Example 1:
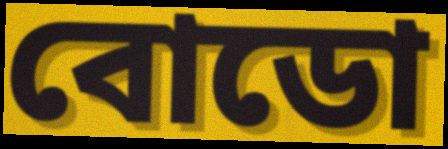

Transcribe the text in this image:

বোডো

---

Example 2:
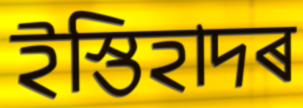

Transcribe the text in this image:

ইস্তিহাদৰ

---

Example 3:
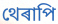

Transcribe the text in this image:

থেৰাপি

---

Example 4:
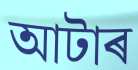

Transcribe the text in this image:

আটাৰ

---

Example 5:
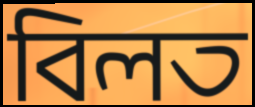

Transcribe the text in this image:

বিলত